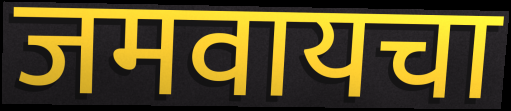
जमवायचा